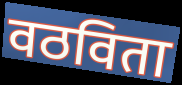
वठविता